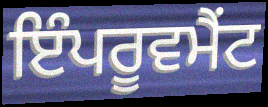
ਇੰਪਰੂਵਮੈਂਟ